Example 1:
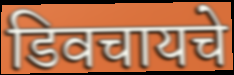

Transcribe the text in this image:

डिवचायचे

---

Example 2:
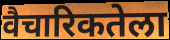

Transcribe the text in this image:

वैचारिकतेला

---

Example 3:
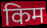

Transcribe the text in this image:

किम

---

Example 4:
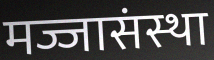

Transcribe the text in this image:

मज्जासंस्था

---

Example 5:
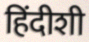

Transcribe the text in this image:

हिंदीशी